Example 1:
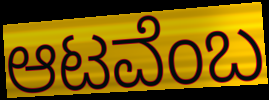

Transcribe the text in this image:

ಆಟವೆಂಬ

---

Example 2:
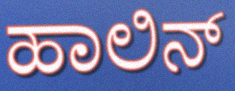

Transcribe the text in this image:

ಹಾಲಿನ್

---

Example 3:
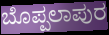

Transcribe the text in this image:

ಬೊಪ್ಪಲಾಪುರ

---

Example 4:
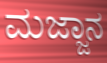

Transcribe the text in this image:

ಮಜ್ಜಾನ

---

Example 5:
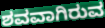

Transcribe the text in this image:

ಶವವಾಗಿರುವ